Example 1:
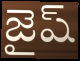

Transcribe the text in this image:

జైష్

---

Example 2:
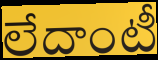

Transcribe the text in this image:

లేదాంటీ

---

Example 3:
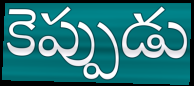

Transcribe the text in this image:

కెప్పుడు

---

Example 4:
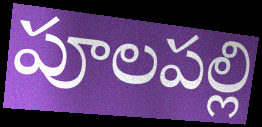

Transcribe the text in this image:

పూలపల్లి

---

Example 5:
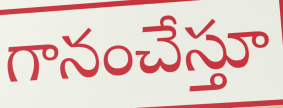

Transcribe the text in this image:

గానంచేస్తూ